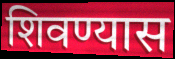
शिवण्यास